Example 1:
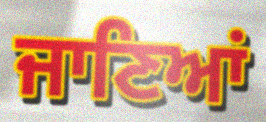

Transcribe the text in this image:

ਜਾਣਿਆਂ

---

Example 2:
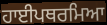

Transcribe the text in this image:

ਹਾਈਪਥਰਮਿਆ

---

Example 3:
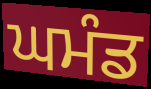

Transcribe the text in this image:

ਘਮੰਡ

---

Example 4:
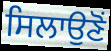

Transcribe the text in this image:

ਸਿਲਾਉਣੋਂ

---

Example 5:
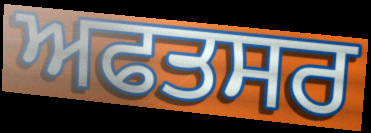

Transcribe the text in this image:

ਅਫਤਸਰ